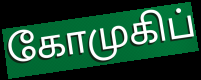
கோமுகிப்